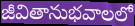
జీవితానుభవాలలో